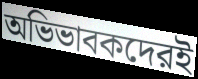
অভিভাবকদেরই